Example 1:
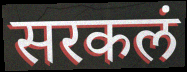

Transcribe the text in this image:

सरकलं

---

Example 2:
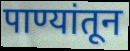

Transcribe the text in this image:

पाण्यांतून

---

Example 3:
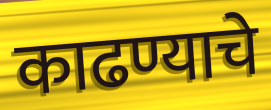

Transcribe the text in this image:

काढण्याचे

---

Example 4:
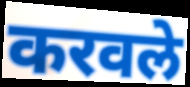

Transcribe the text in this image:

करवले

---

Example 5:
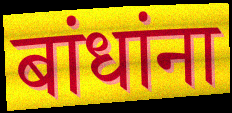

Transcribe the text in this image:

बांधांना